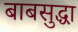
बाबसुद्धा